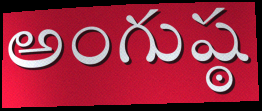
అంగుష్ఠ